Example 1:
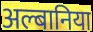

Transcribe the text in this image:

अल्बानिया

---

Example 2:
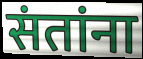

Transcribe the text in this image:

संतांना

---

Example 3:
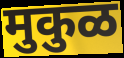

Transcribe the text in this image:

मुकुळ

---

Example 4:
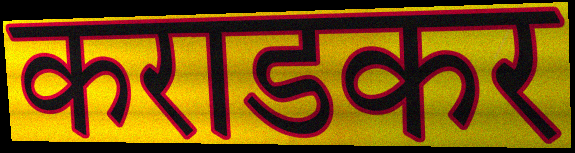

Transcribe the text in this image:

कराडकर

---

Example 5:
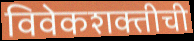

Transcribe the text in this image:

विवेकशक्तीची